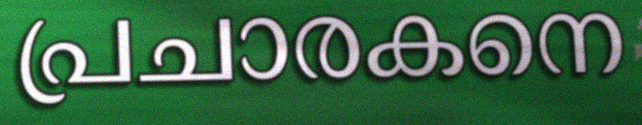
പ്രചാരകനെ